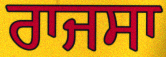
ਰਾਜਸਾ